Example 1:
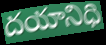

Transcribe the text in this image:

దయానిధి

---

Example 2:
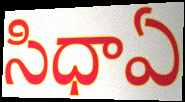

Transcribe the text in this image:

సిధాఏ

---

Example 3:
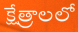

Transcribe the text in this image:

క్షేత్రాలలో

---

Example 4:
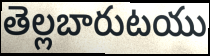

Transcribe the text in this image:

తెల్లబారుటయు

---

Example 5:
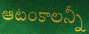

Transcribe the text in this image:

ఆటంకాలన్నీ